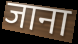
जाना